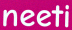
neeti